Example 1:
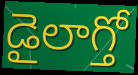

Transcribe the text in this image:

డైలాగ్తో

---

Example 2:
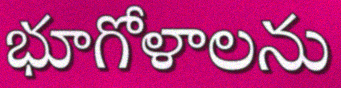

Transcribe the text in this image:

భూగోళాలను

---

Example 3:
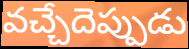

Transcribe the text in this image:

వచ్చేదెప్పుడు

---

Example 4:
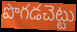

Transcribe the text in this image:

పొగడచెట్టు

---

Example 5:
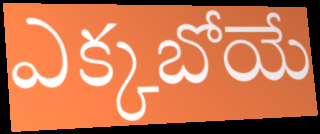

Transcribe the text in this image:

ఎక్కబోయే